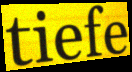
tiefe